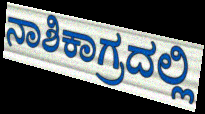
ನಾಶಿಕಾಗ್ರದಲ್ಲಿ